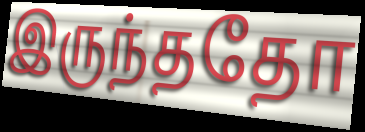
இருந்ததோ